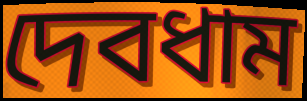
দেবধাম